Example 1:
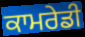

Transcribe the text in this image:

ਕਾਮਰੇਡੀ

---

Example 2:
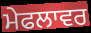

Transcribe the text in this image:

ਮੇਫਲਾਵਰ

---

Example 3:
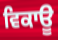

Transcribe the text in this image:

ਵਿਕਾਊ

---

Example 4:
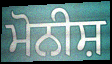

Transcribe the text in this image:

ਮੋਨੀਸ਼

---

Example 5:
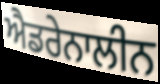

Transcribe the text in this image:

ਐਡਰੇਨਾਲੀਨ